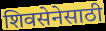
शिवसेनेसाठी